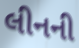
લીનની